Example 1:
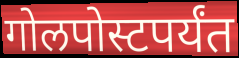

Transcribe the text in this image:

गोलपोस्टपर्यंत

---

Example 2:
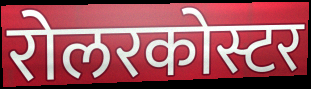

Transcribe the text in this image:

रोलरकोस्टर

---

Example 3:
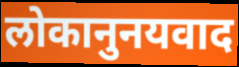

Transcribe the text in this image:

लोकानुनयवाद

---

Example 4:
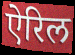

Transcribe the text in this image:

ऐरिल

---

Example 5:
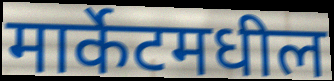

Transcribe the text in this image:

मार्केटमधील